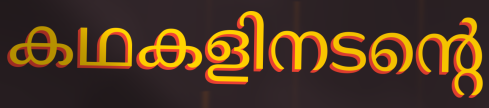
കഥകളിനടന്റെ